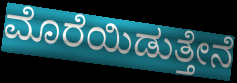
ಮೊರೆಯಿಡುತ್ತೇನೆ